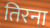
तिरना